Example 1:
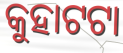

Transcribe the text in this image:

କୁହାଟଟା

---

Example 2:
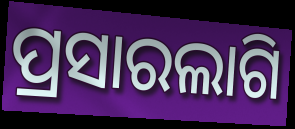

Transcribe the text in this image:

ପ୍ରସାରଲାଗି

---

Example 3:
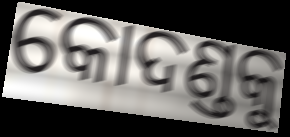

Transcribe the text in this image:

କୋଦଣ୍ଡକୁ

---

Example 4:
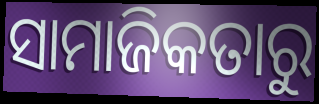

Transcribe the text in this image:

ସାମାଜିକତାରୁ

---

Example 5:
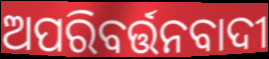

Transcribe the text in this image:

ଅପରିବର୍ତ୍ତନବାଦୀ